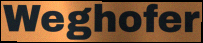
Weghofer